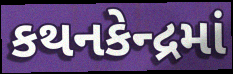
કથનકેન્દ્રમાં